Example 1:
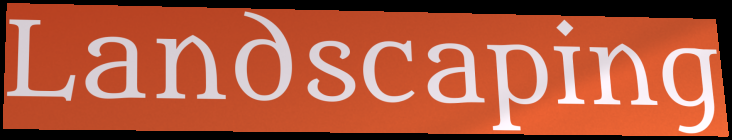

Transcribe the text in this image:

Landscaping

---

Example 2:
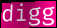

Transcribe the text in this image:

digg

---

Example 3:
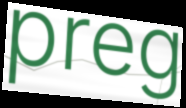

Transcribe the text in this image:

preg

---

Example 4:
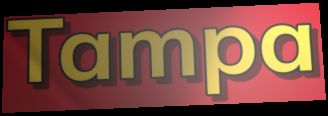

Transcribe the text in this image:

Tampa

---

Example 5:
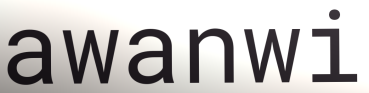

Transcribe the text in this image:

awanwi